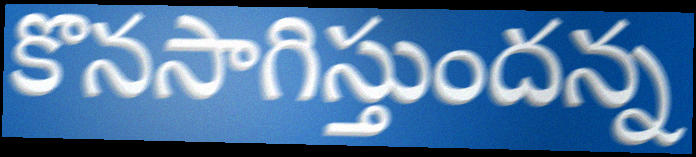
కొనసాగిస్తుందన్న